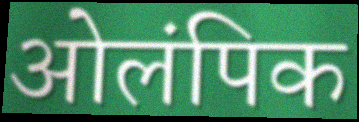
ओलंपिक